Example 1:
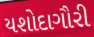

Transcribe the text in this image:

યશોદાગૌરી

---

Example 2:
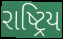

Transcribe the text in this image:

રાષ્ટ્રિય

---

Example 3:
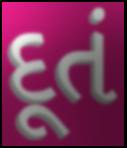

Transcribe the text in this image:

દૂતં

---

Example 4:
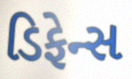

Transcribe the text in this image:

ડિફેન્સ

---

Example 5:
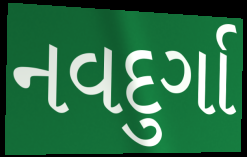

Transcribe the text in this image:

નવદુર્ગા